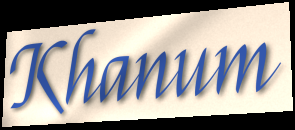
Khanum